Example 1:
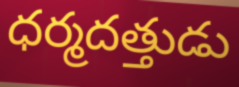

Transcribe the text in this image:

ధర్మదత్తుడు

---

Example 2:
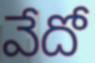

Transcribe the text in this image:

వేదో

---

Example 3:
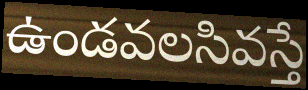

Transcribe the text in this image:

ఉండవలసివస్తే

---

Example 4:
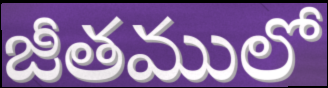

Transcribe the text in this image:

జీతములో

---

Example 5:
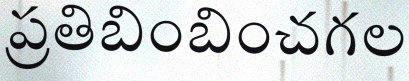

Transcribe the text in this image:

ప్రతిబింబించగల